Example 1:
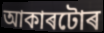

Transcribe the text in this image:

আকাৰটোৰ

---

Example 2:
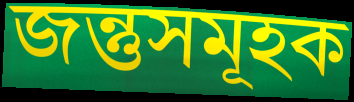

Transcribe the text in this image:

জন্তুসমূহক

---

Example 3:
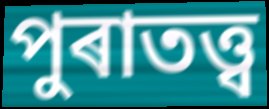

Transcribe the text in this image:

পুৰাতত্ত্ব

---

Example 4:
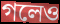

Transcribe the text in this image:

গলেও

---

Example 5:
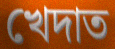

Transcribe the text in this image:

খেদাত